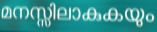
മനസ്സിലാകുകയും